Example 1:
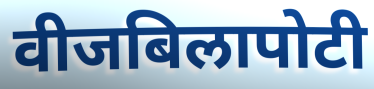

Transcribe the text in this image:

वीजबिलापोटी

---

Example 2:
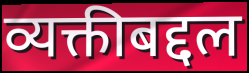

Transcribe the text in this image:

व्यक्तीबद्दल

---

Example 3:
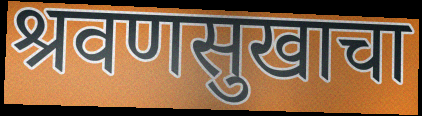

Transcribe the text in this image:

श्रवणसुखाचा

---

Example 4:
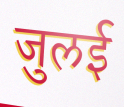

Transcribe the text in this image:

जुलई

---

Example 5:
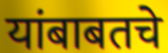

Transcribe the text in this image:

यांबाबतचे